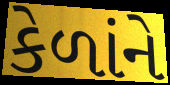
કેળાંને